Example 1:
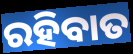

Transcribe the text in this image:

ରହିବାତ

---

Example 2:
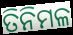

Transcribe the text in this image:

ତିନିମଳ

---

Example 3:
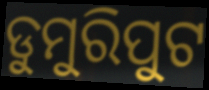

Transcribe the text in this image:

ଡୁମୁରିପୁଟ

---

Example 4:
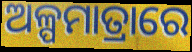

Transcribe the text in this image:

ଅଳ୍ପମାତ୍ରାରେ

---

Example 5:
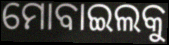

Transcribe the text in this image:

ମୋବାଇଲକୁ